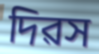
দিৱস